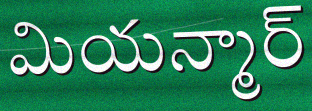
మియన్మార్